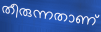
തീരുന്നതാണ്